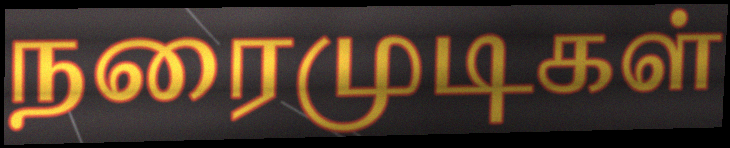
நரைமுடிகள்